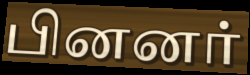
பினனர்